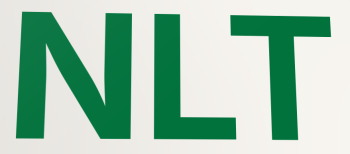
NLT